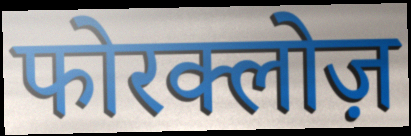
फोरक्लोज़